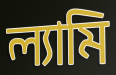
ল্যামি